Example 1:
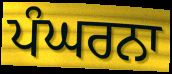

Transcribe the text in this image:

ਪੰਘਰਨਾ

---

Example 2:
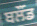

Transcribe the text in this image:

ਬਲੌਂਡ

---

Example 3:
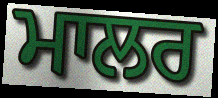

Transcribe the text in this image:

ਮਾਲਰ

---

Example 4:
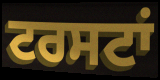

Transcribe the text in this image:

ਟਰਸਟਾਂ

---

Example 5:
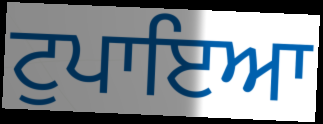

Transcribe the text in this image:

ਟੁਪਾਇਆ